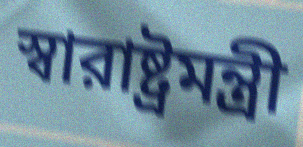
স্বারাষ্ট্রমন্ত্রী